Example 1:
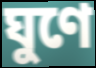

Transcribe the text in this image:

ঘুণে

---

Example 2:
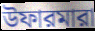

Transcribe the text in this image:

উফারমারা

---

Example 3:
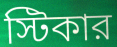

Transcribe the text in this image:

স্টিকার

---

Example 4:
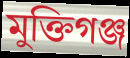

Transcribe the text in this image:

মুক্তিগঞ্জ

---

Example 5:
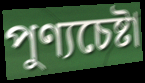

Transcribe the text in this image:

পুণ্যচেষ্টা